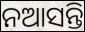
ନଆସନ୍ତି